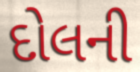
દોલની